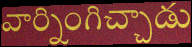
వార్నింగిచ్చాడు